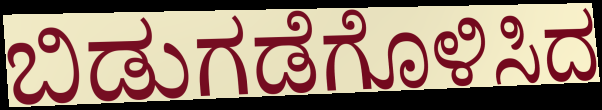
ಬಿಡುಗಡೆಗೊಳಿಸಿದ